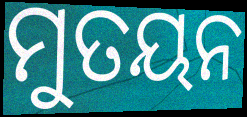
ମୁତୟନ